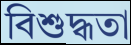
বিশুদ্ধতা